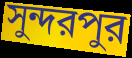
সুন্দরপুর